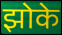
झोके